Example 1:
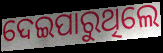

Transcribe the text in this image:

ଦେଇପାରୁଥିଲେ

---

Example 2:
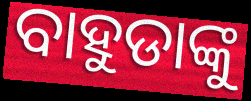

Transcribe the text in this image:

ବାହୁଡାଙ୍କୁ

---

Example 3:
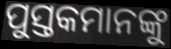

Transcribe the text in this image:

ପୁସ୍ତକମାନଙ୍କୁ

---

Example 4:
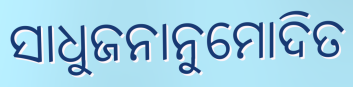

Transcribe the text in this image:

ସାଧୁଜନାନୁମୋଦିତ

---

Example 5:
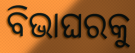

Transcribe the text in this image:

ବିଭାଘରକୁ